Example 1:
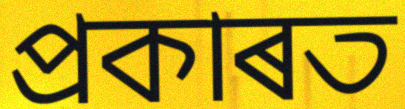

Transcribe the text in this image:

প্ৰকাৰত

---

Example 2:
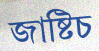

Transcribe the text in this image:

জাষ্টিচ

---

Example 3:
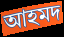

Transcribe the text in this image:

আহমদ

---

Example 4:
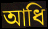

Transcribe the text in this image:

আধি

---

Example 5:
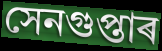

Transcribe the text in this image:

সেনগুপ্তাৰ